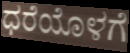
ಧರೆಯೊಳಗೆ